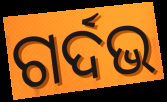
ଗର୍ଦଭ